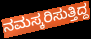
ನಮಸ್ಕರಿಸುತ್ತಿದ್ದ